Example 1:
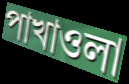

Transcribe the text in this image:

পাখাওলা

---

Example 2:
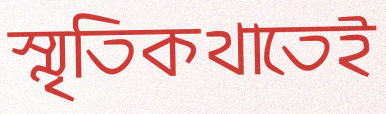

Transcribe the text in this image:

স্মৃতিকথাতেই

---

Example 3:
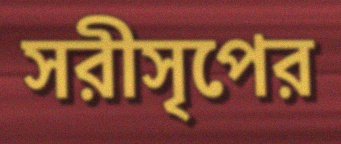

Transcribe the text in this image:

সরীসৃপের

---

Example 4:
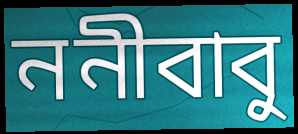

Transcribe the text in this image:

ননীবাবু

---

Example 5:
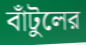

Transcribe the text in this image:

বাঁটুলের